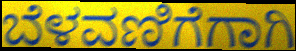
ಬೆಳವಣಿಗೆಗಾಗಿ